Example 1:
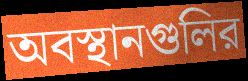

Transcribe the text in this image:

অবস্থানগুলির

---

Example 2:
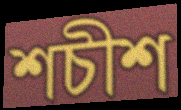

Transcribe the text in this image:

শচীশ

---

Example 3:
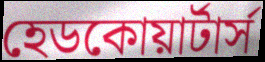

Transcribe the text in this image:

হেডকোয়ার্টার্স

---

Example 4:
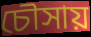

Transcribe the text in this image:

চৌসায়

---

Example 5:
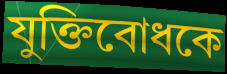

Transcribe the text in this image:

যুক্তিবোধকে